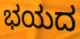
ಭಯದ